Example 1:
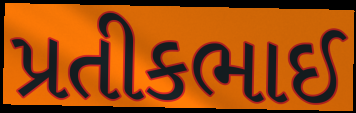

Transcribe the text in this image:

પ્રતીકભાઈ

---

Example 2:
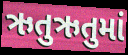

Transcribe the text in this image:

ઋતુઋતુમાં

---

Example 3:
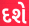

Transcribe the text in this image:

દશે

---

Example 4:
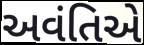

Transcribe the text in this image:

અવંતિએ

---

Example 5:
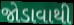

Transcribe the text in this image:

જોડાવાથી